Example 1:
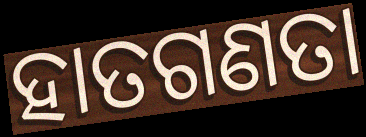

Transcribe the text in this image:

ହାତଗଣତା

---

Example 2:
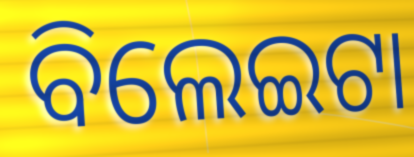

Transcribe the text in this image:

ବିଲେଇଟା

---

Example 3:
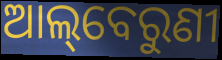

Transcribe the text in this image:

ଆଲ୍‌ବେରୁଣୀ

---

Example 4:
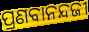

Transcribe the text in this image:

ପ୍ରଣବାନନ୍ଦଜୀ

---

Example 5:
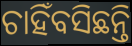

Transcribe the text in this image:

ଚାହିଁବସିଛନ୍ତି